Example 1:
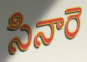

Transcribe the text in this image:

సినారె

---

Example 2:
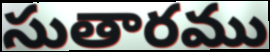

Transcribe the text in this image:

సుతారము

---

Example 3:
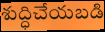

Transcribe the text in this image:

శుద్ధిచేయబడి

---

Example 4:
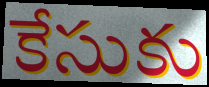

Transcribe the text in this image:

కేసుకు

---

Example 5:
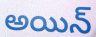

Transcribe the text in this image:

అయిన్